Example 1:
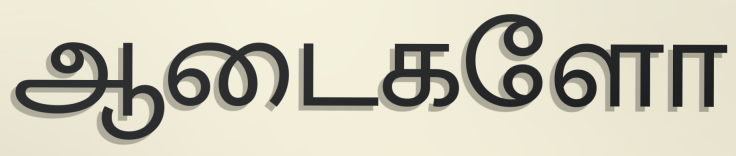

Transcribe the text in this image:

ஆடைகளோ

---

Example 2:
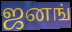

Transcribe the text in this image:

ஜனங்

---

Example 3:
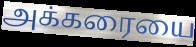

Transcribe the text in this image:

அக்கரையை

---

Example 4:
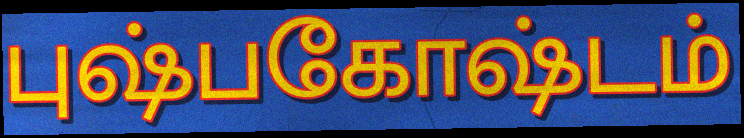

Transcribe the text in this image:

புஷ்பகோஷ்டம்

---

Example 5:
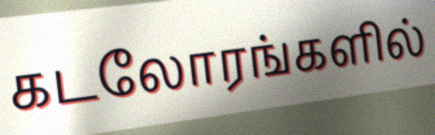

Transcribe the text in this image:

கடலோரங்களில்